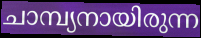
ചാമ്പ്യനായിരുന്ന